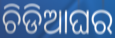
ଚିଡିଆଘର